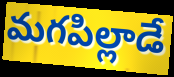
మగపిల్లాడే